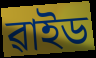
ৱাইড